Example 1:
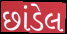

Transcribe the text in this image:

છાંડેલ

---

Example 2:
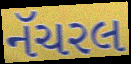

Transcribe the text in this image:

નૅચરલ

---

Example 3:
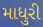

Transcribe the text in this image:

માધુરી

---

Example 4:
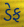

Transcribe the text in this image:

ડેફ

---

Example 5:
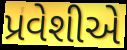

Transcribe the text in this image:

પ્રવેશીએ